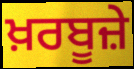
ਖ਼ਰਬੂਜ਼ੇ